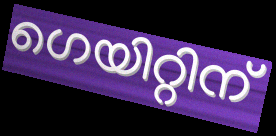
ഗെയിറ്റിന്